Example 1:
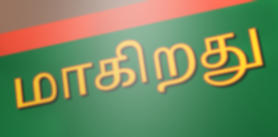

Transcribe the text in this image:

மாகிறது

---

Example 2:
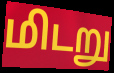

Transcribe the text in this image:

மிடறு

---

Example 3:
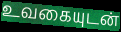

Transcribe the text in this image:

உவகையுடன்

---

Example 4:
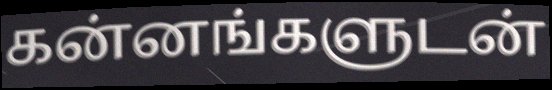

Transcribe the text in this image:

கன்னங்களுடன்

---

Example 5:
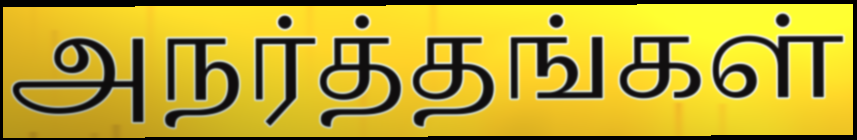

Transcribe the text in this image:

அநர்த்தங்கள்